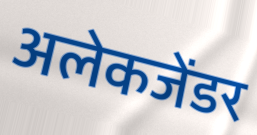
अलेकजेंडर